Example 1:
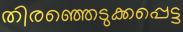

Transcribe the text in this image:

തിരഞ്ഞെടുക്കപ്പെട്ട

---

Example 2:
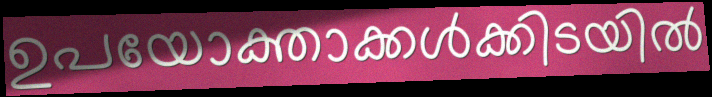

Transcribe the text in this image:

ഉപയോക്താക്കൾക്കിടയിൽ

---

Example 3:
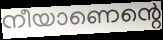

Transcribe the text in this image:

നീയാണെന്റെ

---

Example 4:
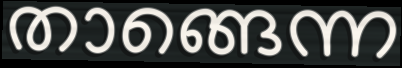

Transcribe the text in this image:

താങ്ങെന്ന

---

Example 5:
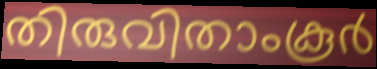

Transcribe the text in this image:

തിരുവിതാംകൂർ